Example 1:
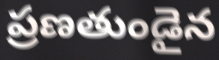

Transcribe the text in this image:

ప్రణతుండైన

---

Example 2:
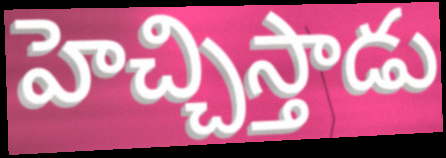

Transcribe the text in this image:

హెచ్చిస్తాడు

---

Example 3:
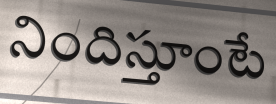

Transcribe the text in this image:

నిందిస్తూంటే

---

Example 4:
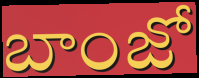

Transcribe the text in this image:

బాంజో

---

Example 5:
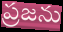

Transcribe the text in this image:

ప్రజను